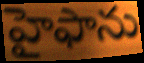
హైఫాను